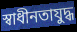
স্বাধীনতাযুদ্ধ